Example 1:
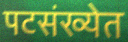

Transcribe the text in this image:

पटसंख्येत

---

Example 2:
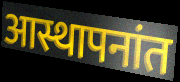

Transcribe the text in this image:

आस्थापनांत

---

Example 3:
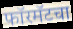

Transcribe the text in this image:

फॉरमॅटचा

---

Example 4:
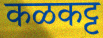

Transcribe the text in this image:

कळकट्ट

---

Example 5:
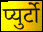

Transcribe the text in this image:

प्युर्टो